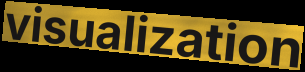
visualization